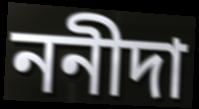
ননীদা